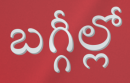
బగ్గీల్లో